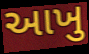
આખુ